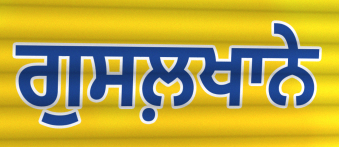
ਗੁਸਲ਼ਖਾਨੇ